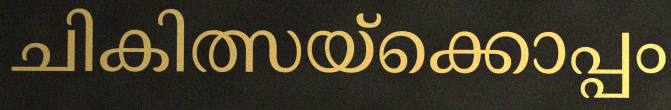
ചികിത്സയ്ക്കൊപ്പം